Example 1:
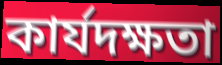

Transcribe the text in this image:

কাৰ্যদক্ষতা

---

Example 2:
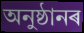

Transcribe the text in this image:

অনুষ্ঠানৰ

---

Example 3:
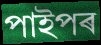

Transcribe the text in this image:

পাইপৰ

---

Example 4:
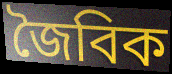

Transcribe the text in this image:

জৈবিক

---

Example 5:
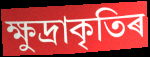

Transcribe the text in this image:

ক্ষুদ্ৰাকৃতিৰ